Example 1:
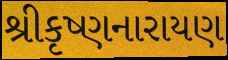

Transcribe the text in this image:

શ્રીકૃષ્ણનારાયણ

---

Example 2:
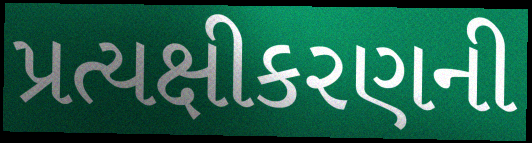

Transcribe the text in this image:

પ્રત્યક્ષીકરણની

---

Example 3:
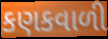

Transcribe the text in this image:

કણકવાળી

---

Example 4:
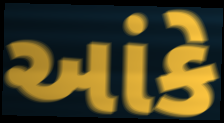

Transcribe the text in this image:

આંકે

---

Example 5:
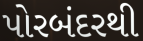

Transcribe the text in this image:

પોરબંદરથી